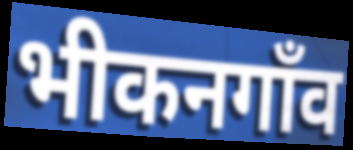
भीकनगाँव